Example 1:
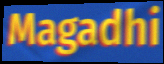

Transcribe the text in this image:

Magadhi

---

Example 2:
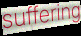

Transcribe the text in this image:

suffering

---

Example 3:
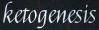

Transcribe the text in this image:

ketogenesis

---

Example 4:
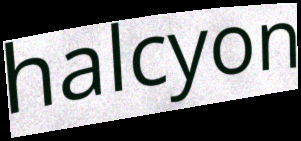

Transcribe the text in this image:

halcyon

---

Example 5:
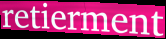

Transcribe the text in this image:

retierment